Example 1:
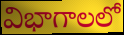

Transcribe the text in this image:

విభాగాలలో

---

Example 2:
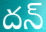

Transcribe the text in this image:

దన్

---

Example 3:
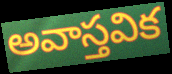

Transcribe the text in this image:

అవాస్తవిక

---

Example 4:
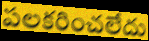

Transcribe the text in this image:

పలకరించలేదు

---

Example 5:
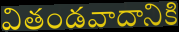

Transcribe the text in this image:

వితండవాదానికి